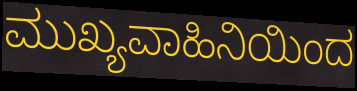
ಮುಖ್ಯವಾಹಿನಿಯಿಂದ